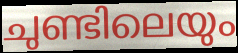
ചുണ്ടിലെയും